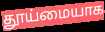
தூய்மையாக